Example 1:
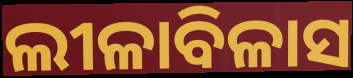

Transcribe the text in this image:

ଲୀଳାବିଳାସ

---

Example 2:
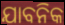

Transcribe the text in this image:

ଯାବନିକ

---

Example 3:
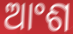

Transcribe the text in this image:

ଆଂଶ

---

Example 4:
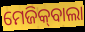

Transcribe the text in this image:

ମେଜିକ୍‍ବାଲା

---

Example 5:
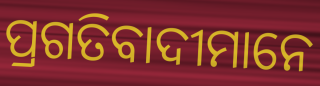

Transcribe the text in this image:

ପ୍ରଗତିବାଦୀମାନେ